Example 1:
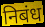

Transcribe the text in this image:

निबंध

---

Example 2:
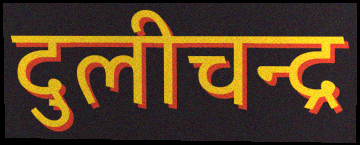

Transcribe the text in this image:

दुलीचन्द्र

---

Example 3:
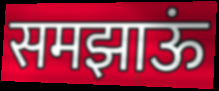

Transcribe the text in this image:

समझाऊं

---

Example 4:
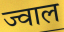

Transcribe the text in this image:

ज्वाल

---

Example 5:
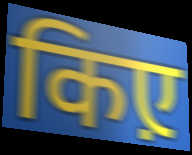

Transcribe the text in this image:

किए़